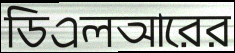
ডিএলআরের